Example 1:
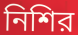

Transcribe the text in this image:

নিশির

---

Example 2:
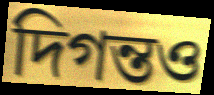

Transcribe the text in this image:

দিগন্তও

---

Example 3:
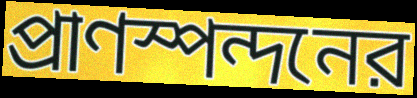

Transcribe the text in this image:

প্রাণস্পন্দনের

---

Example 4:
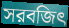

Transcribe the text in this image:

সরবজিৎ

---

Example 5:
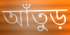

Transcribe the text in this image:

আঁতুড়